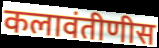
कलावंतीणीस